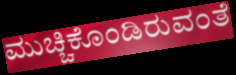
ಮುಚ್ಚಿಕೊಂಡಿರುವಂತೆ